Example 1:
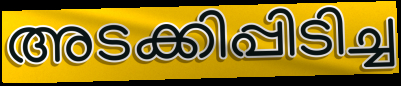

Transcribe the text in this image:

അടക്കിപ്പിടിച്ച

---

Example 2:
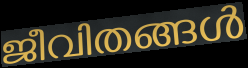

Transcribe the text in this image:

ജീവിതങ്ങൾ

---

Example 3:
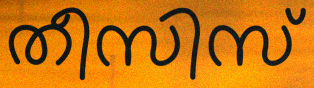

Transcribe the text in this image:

തീസിസ്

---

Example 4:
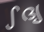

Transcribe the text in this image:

ഽദ്യ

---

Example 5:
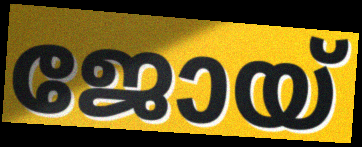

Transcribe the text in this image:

ജോയ്